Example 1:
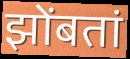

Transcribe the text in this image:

झोंबतां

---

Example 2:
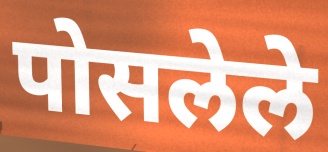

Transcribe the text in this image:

पोसलेले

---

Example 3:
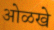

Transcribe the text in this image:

ओळखे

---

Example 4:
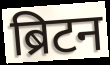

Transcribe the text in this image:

ब्रिटन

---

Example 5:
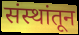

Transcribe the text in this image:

संस्थांतून